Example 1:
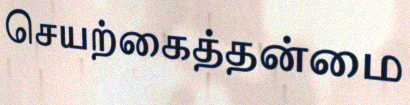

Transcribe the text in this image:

செயற்கைத்தன்மை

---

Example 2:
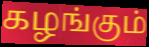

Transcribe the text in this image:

கழங்கும்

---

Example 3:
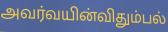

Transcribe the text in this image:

அவர்வயின்விதும்பல்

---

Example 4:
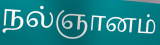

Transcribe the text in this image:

நல்ஞானம்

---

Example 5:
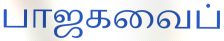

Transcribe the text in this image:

பாஜகவைப்